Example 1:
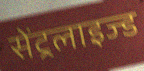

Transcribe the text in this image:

सेंट्रलाइज्ड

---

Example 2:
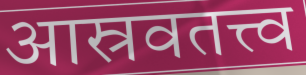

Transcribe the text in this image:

आस्रवतत्त्व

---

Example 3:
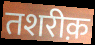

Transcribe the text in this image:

तशरीक़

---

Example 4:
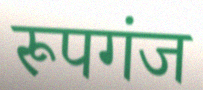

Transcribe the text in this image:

रूपगंज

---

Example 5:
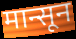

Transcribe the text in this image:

मान्सून